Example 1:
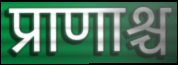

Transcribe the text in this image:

प्राणाश्च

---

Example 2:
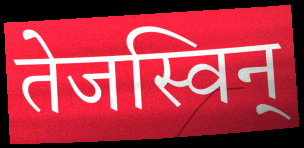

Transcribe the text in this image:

तेजस्विन्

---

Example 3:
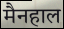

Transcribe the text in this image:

मैनहाल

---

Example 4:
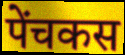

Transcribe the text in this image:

पेंचकस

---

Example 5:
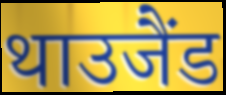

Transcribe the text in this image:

थाउजैंड